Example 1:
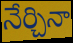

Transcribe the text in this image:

నేర్చినా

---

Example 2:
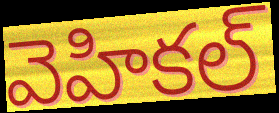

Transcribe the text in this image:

వెహికల్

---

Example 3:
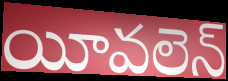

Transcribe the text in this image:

యీవలెన్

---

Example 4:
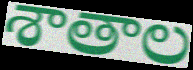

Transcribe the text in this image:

శాతాల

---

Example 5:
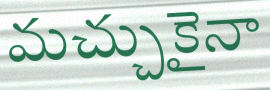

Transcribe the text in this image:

మచ్చుకైనా